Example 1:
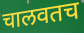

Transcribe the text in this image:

चालवतच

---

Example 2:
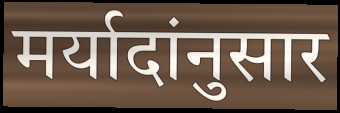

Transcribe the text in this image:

मर्यादांनुसार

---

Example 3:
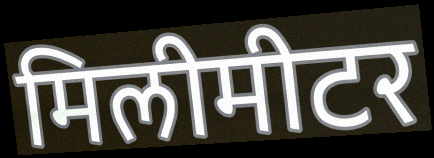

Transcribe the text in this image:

मिलीमीटर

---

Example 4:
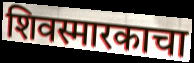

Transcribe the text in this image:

शिवस्मारकाचा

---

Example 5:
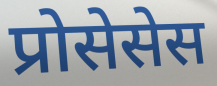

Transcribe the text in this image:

प्रोसेसेस